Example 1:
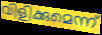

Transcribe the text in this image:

വിളിക്കുമെന്ന്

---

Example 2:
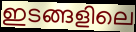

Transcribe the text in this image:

ഇടങ്ങളിലെ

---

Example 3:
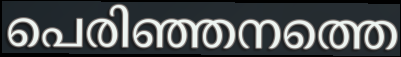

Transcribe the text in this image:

പെരിഞ്ഞനത്തെ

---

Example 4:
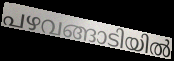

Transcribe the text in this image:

പഴവങ്ങാടിയിൽ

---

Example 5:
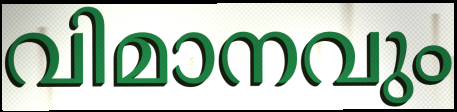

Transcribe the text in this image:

വിമാനവും